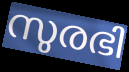
സുരഭി